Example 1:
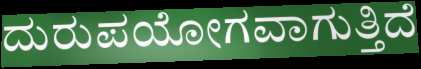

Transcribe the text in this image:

ದುರುಪಯೋಗವಾಗುತ್ತಿದೆ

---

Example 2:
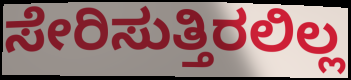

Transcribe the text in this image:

ಸೇರಿಸುತ್ತಿರಲಿಲ್ಲ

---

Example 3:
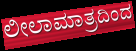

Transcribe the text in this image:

ಲೀಲಾಮಾತ್ರದಿಂದ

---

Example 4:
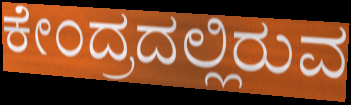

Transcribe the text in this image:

ಕೇಂದ್ರದಲ್ಲಿರುವ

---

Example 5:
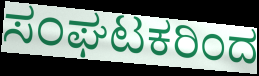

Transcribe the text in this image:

ಸಂಘಟಕರಿಂದ